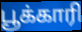
பூக்காரி